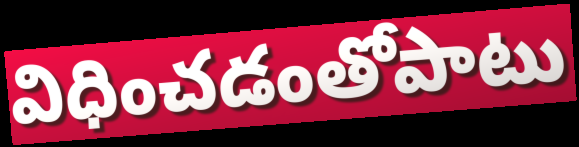
విధించడంతోపాటు